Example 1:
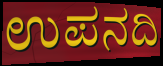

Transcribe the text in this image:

ಉಪನದಿ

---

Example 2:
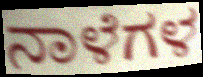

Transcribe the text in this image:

ನಾಳೆಗಳ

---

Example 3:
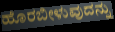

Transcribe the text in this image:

ಹೊರಬೀಳುವುದನ್ನು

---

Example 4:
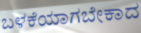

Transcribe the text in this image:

ಬಳಕೆಯಾಗಬೇಕಾದ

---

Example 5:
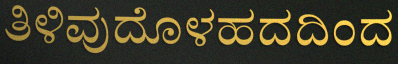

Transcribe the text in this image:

ತಿಳಿವುದೊಳಹದದಿಂದ